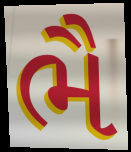
ભૈ